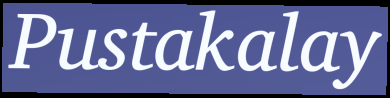
Pustakalay